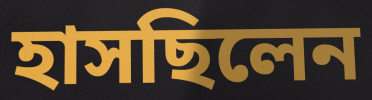
হাসছিলেন